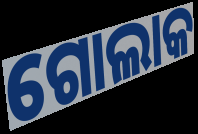
ଗୋଲାକ